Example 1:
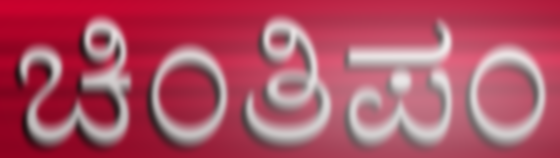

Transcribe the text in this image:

ಚಿಂತಿಪಂ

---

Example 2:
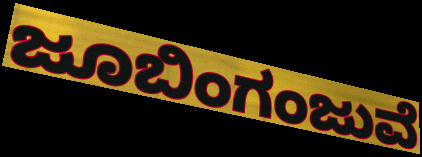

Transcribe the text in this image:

ಜೂಬಿಂಗಂಜುವೆ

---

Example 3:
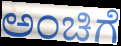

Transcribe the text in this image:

ಅಂಚಿಗೆ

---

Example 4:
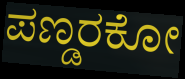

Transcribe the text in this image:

ಪಣ್ಡರಕೋ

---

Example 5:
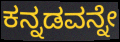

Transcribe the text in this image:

ಕನ್ನಡವನ್ನೇ